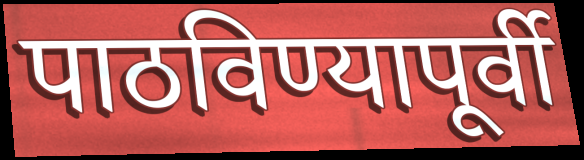
पाठविण्यापूर्वी